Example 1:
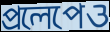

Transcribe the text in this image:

প্রলেপেও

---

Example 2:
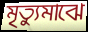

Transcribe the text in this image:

মৃত্যুমাঝে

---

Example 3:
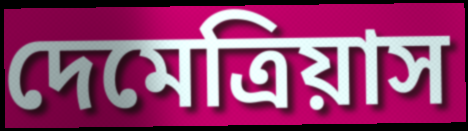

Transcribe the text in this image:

দেমেত্রিয়াস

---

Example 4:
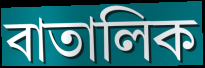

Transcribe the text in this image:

বাতালিক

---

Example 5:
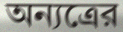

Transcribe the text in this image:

অন্যত্রের